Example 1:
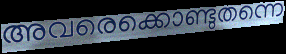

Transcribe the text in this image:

അവരെക്കൊണ്ടുതന്നെ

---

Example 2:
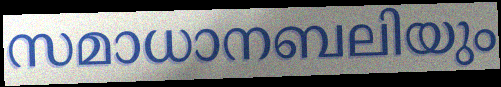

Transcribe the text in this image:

സമാധാനബലിയും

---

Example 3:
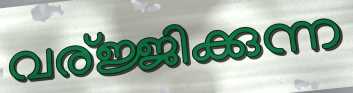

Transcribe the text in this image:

വര്ജ്ജിക്കുന്ന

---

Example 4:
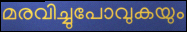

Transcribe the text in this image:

മരവിച്ചുപോവുകയും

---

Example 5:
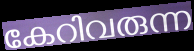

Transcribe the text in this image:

കേറിവരുന്ന